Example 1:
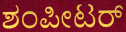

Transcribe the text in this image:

ಶಂಪೀಟರ್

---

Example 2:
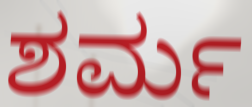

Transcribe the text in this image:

ಶರ್ಮ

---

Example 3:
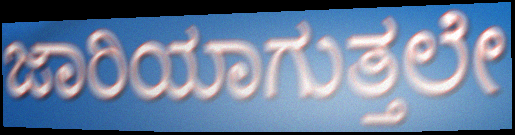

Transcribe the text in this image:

ಜಾರಿಯಾಗುತ್ತಲೇ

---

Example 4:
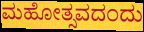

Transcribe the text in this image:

ಮಹೋತ್ಸವದಂದು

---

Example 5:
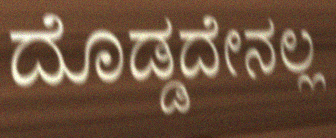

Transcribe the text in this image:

ದೊಡ್ಡದೇನಲ್ಲ